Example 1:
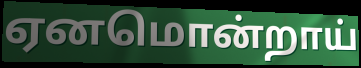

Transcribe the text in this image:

ஏனமொன்றாய்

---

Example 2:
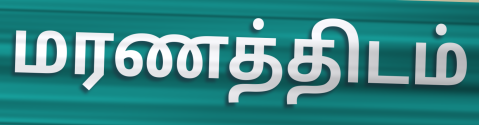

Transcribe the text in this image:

மரணத்திடம்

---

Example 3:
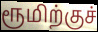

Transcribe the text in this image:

ரூமிற்குச்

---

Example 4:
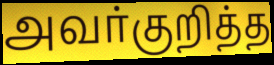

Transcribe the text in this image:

அவர்குறித்த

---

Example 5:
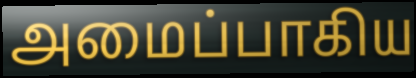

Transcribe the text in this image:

அமைப்பாகிய